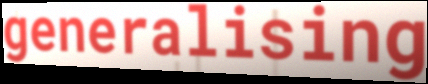
generalising